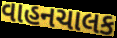
વાહનચાલક